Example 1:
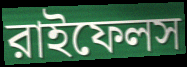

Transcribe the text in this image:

রাইফেলস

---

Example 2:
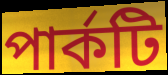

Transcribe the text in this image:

পার্কটি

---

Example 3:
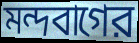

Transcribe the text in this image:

মন্দবাগের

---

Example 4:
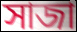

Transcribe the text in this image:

সাজা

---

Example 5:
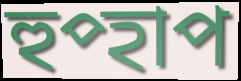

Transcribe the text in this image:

হুপ্হাপ